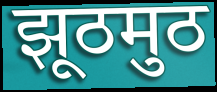
झूठमुठ